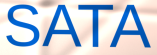
SATA